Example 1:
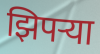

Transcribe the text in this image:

झिपऱ्या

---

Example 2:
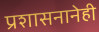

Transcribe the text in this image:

प्रशासनानेही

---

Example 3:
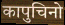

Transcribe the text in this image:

कापुचिनो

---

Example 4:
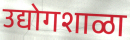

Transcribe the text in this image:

उद्योगशाळा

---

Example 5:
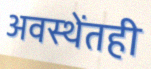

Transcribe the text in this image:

अवस्थेंतही